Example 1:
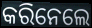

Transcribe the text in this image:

କରିନେଲେ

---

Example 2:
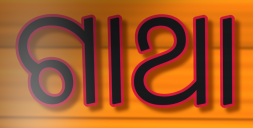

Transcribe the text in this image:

ଗାଥା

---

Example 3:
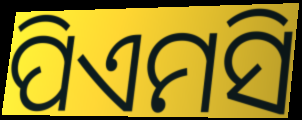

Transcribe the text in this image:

ପିଏମସି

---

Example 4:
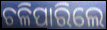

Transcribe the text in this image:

ଚଳିପାରିଲେ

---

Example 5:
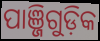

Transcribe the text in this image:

ପାଞ୍ଜିଗୁଡ଼ିକ